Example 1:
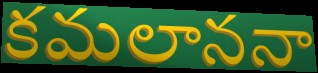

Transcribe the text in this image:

కమలాననా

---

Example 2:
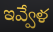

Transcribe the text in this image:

ఇవ్వేళ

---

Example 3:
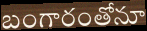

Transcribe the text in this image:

బంగారంతోనూ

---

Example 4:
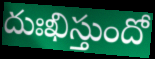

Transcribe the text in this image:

దుఃఖిస్తుందో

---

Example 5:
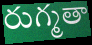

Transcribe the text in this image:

రుగ్మతా